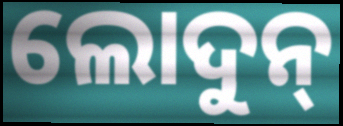
ଲୋଦୁନ୍